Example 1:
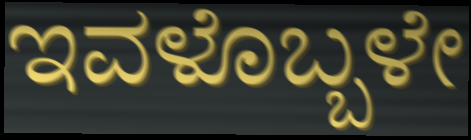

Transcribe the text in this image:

ಇವಳೊಬ್ಬಳೇ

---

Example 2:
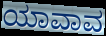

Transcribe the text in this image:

ಯಾವಾವ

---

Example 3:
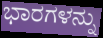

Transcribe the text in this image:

ಭಾರಗಳನ್ನು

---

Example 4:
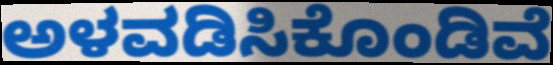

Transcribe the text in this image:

ಅಳವಡಿಸಿಕೊಂಡಿವೆ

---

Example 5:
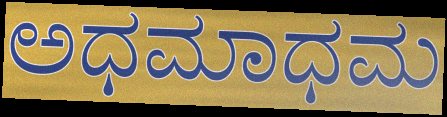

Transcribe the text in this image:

ಅಧಮಾಧಮ